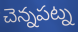
చెన్నపట్న